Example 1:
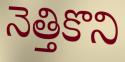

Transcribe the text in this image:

నెత్తికొని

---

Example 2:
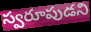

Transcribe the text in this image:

స్వరూపుడని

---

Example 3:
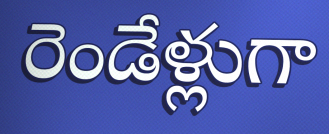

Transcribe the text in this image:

రెండేళ్లుగా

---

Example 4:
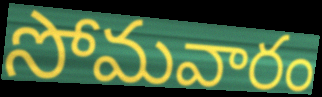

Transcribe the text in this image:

సోమవారం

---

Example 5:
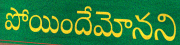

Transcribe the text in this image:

పోయిందేమోనని